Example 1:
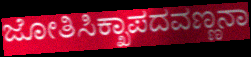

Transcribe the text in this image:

ಜೋತಿಸಿಕ್ಖಾಪದವಣ್ಣನಾ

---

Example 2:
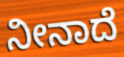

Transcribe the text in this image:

ನೀನಾದೆ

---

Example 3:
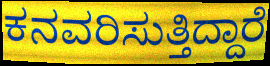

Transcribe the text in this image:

ಕನವರಿಸುತ್ತಿದ್ದಾರೆ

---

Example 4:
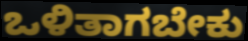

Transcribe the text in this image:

ಒಳಿತಾಗಬೇಕು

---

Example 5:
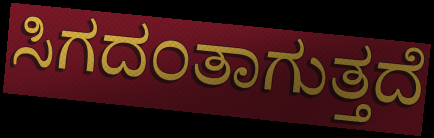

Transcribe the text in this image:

ಸಿಗದಂತಾಗುತ್ತದೆ